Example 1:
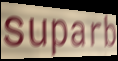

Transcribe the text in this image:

suparb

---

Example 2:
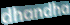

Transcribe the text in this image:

dhandha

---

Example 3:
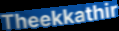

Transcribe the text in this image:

Theekkathir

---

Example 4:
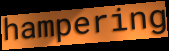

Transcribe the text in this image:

hampering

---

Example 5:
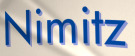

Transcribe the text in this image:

Nimitz